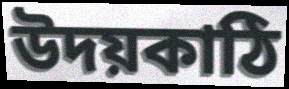
উদয়কাঠি